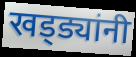
खड्ड्यांनी